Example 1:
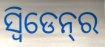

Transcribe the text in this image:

ସ୍ୱିଡେନ୍‍ର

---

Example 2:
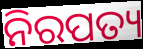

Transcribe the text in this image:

ନିରପତ୍ୟ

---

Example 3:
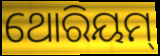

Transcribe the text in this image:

ଥୋରିୟମ୍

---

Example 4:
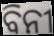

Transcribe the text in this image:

ବିନୀ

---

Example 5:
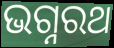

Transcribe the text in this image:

ଭଗ୍ନରଥ